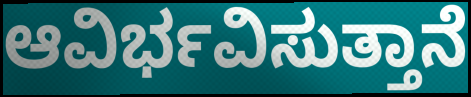
ಆವಿರ್ಭವಿಸುತ್ತಾನೆ